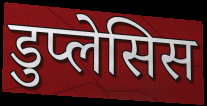
डुप्लेसिस